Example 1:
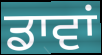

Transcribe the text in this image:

ਡਾਵਾਂ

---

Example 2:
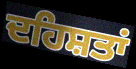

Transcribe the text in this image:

ਦਹਿਸ਼ਤਾਂ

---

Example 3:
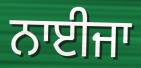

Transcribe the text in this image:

ਨਾਈਜਾ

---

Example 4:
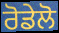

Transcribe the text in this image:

ਰੋਡੇਲੋ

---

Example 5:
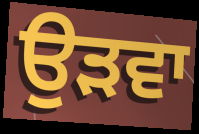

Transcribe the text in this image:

ਉੜਵਾ